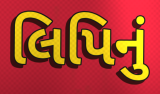
લિપિનું